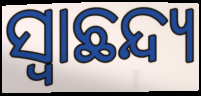
ସ୍ୱାଛନ୍ଦ୍ୟ